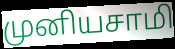
முனியசாமி